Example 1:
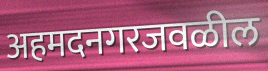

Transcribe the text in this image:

अहमदनगरजवळील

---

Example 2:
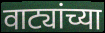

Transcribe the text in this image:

वाट्यांच्या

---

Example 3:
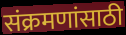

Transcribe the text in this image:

संक्रमणांसाठी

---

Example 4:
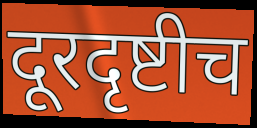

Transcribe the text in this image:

दूरदृष्टीच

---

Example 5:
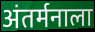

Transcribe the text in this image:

अंतर्मनाला